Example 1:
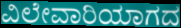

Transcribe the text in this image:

ವಿಲೇವಾರಿಯಾಗದ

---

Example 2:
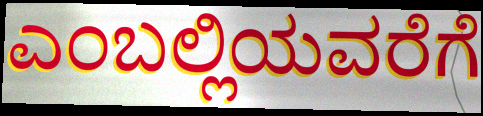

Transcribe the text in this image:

ಎಂಬಲ್ಲಿಯವರೆಗೆ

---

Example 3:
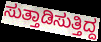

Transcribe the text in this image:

ಸುತ್ತಾಡಿಸುತ್ತಿದ್ದ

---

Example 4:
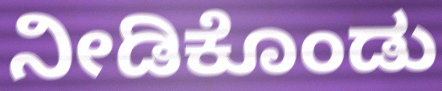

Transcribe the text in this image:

ನೀಡಿಕೊಂಡು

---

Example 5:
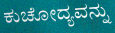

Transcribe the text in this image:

ಕುಚೋದ್ಯವನ್ನು